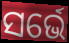
ସର୍ଭେ